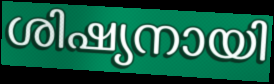
ശിഷ്യനായി